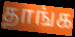
தாங்க